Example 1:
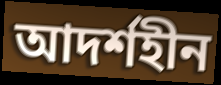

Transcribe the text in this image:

আদৰ্শহীন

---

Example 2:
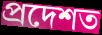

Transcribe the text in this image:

প্ৰদেশত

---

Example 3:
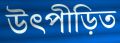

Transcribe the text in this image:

উৎপীড়িত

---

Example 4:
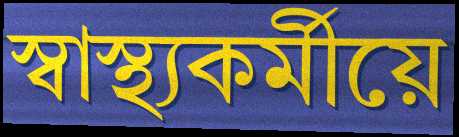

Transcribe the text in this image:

স্বাস্থ্যকৰ্মীয়ে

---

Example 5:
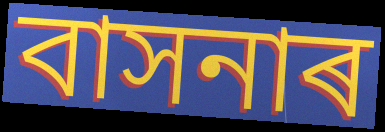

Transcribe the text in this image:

বাসনাৰ